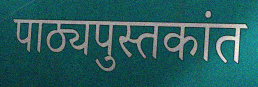
पाठ्यपुस्तकांत